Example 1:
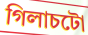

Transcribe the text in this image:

গিলাচটো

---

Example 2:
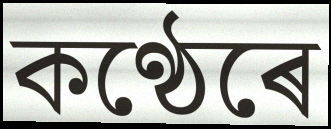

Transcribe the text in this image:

কণ্ঠেৰে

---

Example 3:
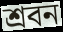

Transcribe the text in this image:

শ্ৰবন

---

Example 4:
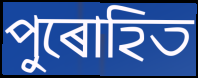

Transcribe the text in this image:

পুৰোহিত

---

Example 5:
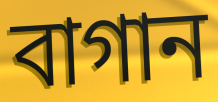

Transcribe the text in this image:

বাগান